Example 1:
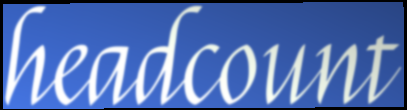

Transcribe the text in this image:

headcount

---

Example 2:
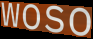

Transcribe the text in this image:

woso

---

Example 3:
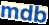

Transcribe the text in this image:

mdb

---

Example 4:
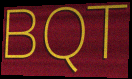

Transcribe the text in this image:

BQT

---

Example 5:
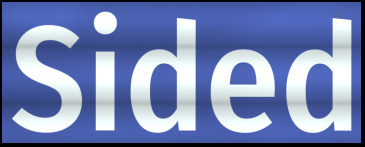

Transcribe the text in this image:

Sided